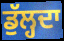
ਡੁੱਲ੍ਹਦਾ